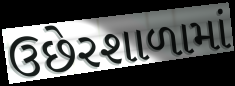
ઉછેરશાળામાં